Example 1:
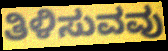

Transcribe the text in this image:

ತಿಳಿಸುವವು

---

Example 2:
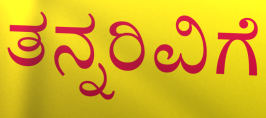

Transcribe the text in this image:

ತನ್ನರಿವಿಗೆ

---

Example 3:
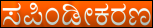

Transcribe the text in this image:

ಸಪಿಂಡೀಕರಣ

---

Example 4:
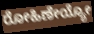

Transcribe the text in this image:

ರೋಹಿಣೇಯ್ಯೋ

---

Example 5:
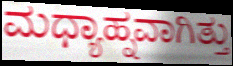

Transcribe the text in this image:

ಮಧ್ಯಾಹ್ನವಾಗಿತ್ತು